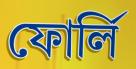
ফোর্লি